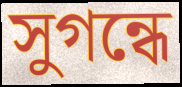
সুগন্ধে